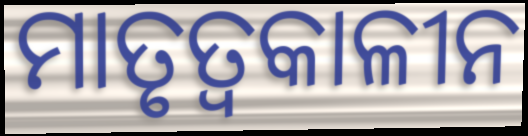
ମାତୃତ୍ୱକାଳୀନ